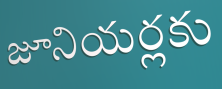
జూనియర్లకు